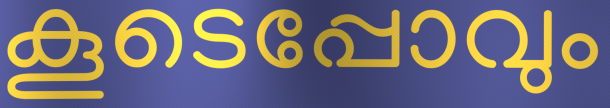
കൂടെപ്പോവും